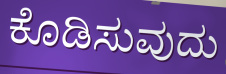
ಕೊಡಿಸುವುದು